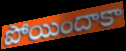
పోయిందాకా